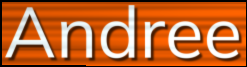
Andree